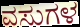
ವಸುಗಳ